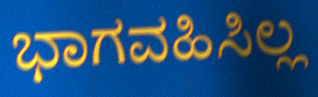
ಭಾಗವಹಿಸಿಲ್ಲ